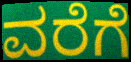
ವರೆಗೆ